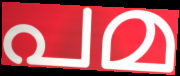
പമ